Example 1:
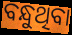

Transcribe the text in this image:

ବନ୍ଧୁଥିବା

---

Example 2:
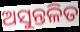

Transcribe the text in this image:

ଅସୁନ୍ତଳିତ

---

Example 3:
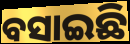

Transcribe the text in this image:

ବସାଇଛି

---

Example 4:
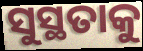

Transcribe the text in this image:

ସୁସ୍ଥତାକୁ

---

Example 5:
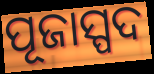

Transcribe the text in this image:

ପୂଜାସ୍ପଦ